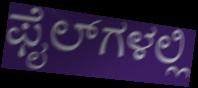
ಫೈಲ್‌ಗಳಲ್ಲಿ